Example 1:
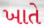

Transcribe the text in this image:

ખાતે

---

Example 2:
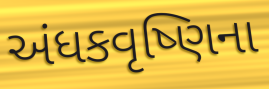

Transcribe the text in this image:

અંધકવૃષ્ણિના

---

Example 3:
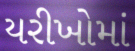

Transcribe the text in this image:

યરીખોમાં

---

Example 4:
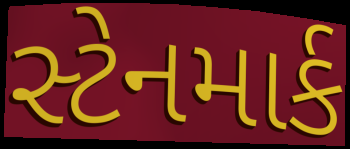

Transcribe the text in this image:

સ્ટેનમાર્ક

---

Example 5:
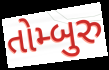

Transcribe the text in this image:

તોમ્બુરુ